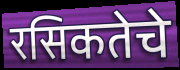
रसिकतेचे